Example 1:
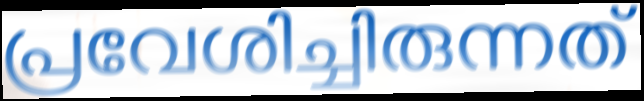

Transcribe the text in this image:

പ്രവേശിച്ചിരുന്നത്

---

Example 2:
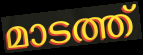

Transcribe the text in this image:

മാടത്ത്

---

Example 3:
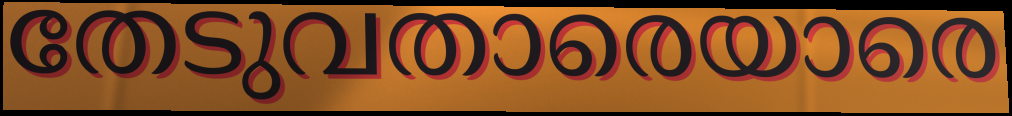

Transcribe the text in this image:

തേടുവതാരെയാരെ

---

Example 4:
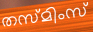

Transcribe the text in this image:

തസ്മിംസ്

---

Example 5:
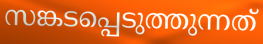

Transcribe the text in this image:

സങ്കടപ്പെടുത്തുന്നത്